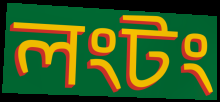
লংটং